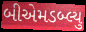
બીએમડબ્લ્યુ